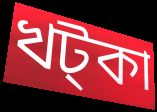
খট্‌কা